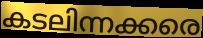
കടലിന്നക്കരെ